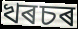
খৰচৰ